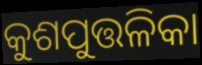
କୁଶପୁତ୍ତଳିକା